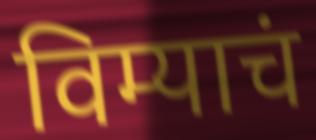
विम्याचं